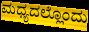
ಮಧ್ಯದಲ್ಲೊಂದು